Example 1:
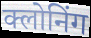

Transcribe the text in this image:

क्लोनिंग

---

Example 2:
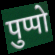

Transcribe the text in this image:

पुप्पो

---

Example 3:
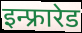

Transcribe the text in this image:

इन्फ्रारेड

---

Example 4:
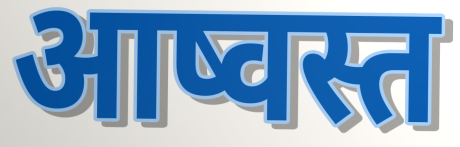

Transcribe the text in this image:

आष्वस्त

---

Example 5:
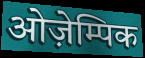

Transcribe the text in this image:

ओज़ेम्पिक